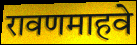
रावणमाहवे